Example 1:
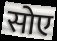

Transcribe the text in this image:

सोए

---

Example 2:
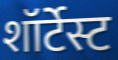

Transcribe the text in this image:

शॉर्टेस्ट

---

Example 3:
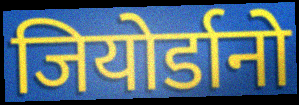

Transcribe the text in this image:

जियोर्डानो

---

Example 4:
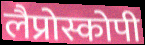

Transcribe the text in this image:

लैप्रोस्कोपी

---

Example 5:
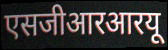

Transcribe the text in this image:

एसजीआरआरयू